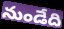
నుండేది